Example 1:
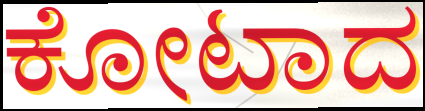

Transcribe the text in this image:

ಕೋಟಾದ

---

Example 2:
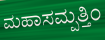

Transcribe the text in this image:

ಮಹಾಸಮ್ಪತ್ತಿಂ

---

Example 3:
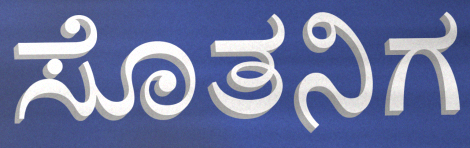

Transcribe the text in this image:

ಸೊತನಿಗ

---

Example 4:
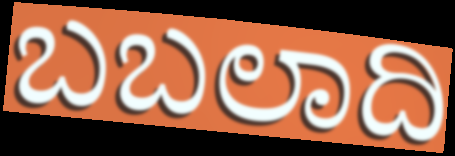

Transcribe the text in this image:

ಬಬಲಾದಿ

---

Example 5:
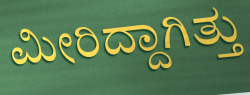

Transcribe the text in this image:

ಮೀರಿದ್ದಾಗಿತ್ತು